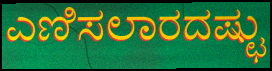
ಎಣಿಸಲಾರದಷ್ಟು